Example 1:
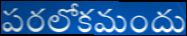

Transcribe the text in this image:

పరలోకమందు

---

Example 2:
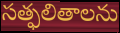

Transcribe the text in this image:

సత్ఫలితాలను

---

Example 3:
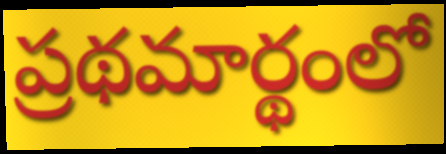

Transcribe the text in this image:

ప్రథమార్థంలో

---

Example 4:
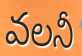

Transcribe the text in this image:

వలనీ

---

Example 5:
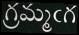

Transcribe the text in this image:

గ్రమ్మఁగ